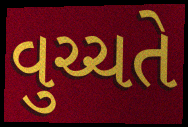
વુચ્ચતે